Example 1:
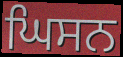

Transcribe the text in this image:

ਘਿਸਨ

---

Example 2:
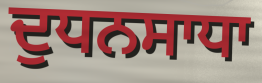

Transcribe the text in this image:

ਦੁਧਨਸਾਧਾ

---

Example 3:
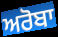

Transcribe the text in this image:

ਅਰੋਬਾ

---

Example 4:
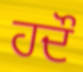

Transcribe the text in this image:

ਹਦੌ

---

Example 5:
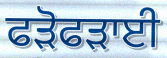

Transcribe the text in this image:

ਫੜੋਫੜਾਈ